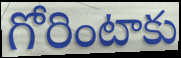
గోరింటాకు